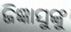
ଜିଜ୍ଞାସୁଙ୍କୁ